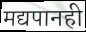
मद्यपानही